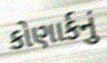
કોણાર્કનું